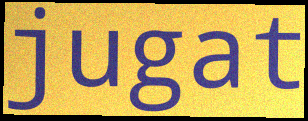
jugat